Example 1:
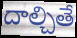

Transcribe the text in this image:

దాల్చితే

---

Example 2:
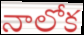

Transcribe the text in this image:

నాలోక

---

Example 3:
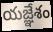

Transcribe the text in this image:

యజ్ఞేశం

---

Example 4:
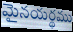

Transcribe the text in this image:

మైనయర్థము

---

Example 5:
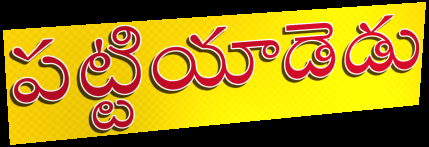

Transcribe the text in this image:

పట్టియాడెడు